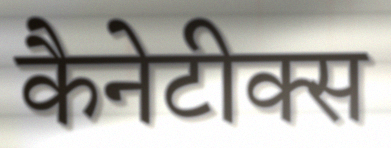
कैनेटीक्स